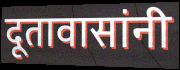
दूतावासांनी